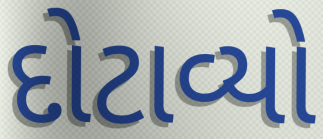
દોટાવ્યો